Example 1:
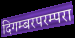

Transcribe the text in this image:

दिगम्बरपरम्परा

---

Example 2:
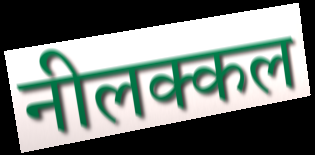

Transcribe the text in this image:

नीलक्कल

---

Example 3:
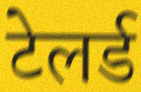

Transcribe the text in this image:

टेलर्ड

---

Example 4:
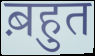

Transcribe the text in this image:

ब़हुत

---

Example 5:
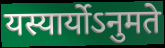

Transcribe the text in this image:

यस्यार्योऽनुमते